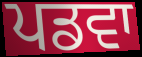
ਪਡਵਾ